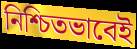
নিশ্চিতভাবেই